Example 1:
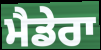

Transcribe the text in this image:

ਮੈਡੇਰਾ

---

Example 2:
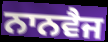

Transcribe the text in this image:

ਨਾਨਵੈਜ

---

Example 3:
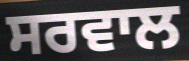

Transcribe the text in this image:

ਸਰਵਾਲ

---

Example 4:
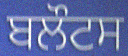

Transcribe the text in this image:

ਬਲੌਟਸ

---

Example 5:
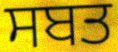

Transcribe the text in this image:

ਸਬਤ